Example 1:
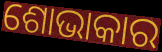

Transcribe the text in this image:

ଶୋଭାକାର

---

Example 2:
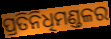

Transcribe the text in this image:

ପ୍ରତିନିଧିମଣ୍ଡଳର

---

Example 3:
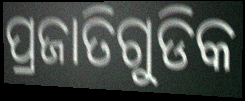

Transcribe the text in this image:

ପ୍ରଜାତିଗୁଡିକ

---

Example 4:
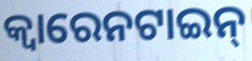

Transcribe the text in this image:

କ୍ୱାରେନଟାଇନ୍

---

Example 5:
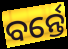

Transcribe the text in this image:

ବର୍ନ୍ତେ